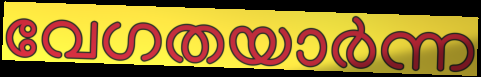
വേഗതയാർന്ന